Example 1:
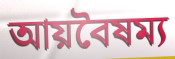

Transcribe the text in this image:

আয়বৈষম্য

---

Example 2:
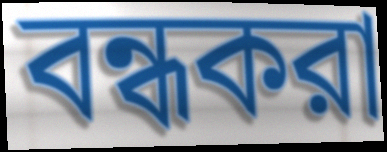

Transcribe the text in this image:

বন্ধকরা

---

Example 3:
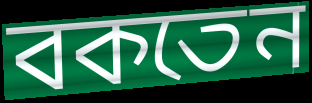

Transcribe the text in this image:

বকতেন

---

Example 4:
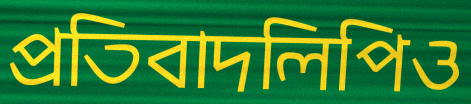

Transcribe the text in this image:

প্রতিবাদলিপিও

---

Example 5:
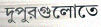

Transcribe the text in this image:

দুপুরগুলোতে